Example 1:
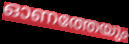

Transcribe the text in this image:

ഓണത്തേയും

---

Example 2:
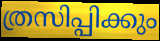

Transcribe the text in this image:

ത്രസിപ്പിക്കും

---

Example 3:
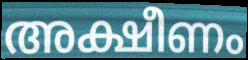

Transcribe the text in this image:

അക്ഷീണം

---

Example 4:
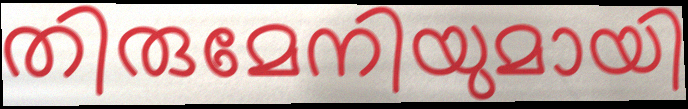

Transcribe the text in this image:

തിരുമേനിയുമായി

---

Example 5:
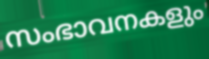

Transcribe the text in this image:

സംഭാവനകളും